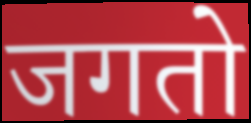
जगतो